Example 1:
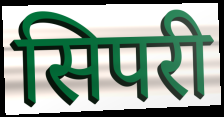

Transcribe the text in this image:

सिपरी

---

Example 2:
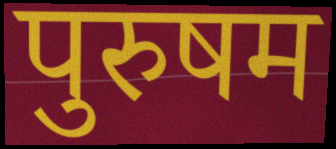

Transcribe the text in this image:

पुरुषम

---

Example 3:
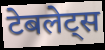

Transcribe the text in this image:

टेबलेट्स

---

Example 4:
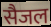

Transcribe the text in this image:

सैजल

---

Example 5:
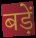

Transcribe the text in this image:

बड़ें